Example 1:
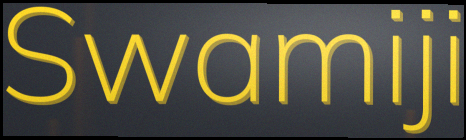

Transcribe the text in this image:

Swamiji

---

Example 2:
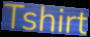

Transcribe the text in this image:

Tshirt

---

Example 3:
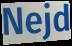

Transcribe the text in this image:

Nejd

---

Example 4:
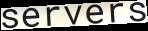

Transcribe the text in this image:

servers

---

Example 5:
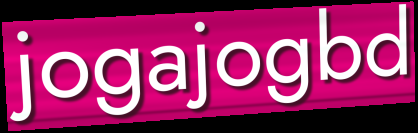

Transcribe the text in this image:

jogajogbd